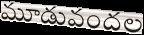
మూడువందల